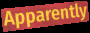
Apparently